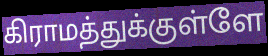
கிராமத்துக்குள்ளே